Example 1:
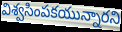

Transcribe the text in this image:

విశ్వసింపకయున్నారని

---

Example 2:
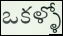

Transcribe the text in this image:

ఒకళ్ళో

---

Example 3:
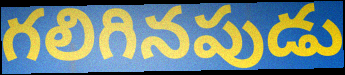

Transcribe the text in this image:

గలిగినపుడు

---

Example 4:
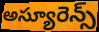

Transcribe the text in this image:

అస్యూరెన్స్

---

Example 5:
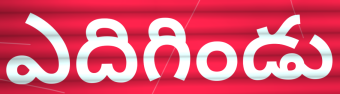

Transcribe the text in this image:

ఎదిగిండు